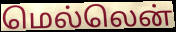
மெல்லென்